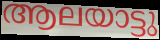
ആലയാട്ടു